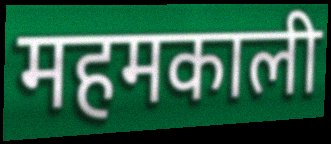
महमकाली